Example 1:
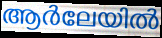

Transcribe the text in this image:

ആർലേയിൽ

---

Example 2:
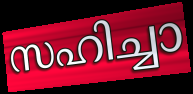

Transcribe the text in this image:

സഹിച്ചാ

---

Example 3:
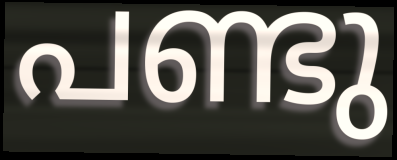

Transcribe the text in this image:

പണ്ടു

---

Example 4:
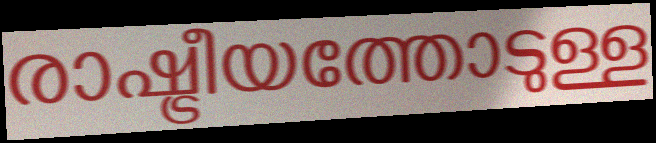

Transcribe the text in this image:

രാഷ്ട്രീയത്തോടുള്ള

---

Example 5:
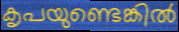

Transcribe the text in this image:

കൃപയുണ്ടെങ്കിൽ